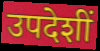
उपदेशीं